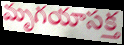
మృగయాసక్త